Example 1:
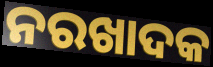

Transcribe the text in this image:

ନରଖାଦକ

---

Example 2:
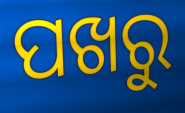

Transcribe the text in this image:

ପଖରୁ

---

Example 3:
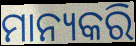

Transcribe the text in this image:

ମାନ୍ୟକରି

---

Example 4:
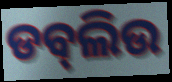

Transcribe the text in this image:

ଡବ୍‍ଲିଉ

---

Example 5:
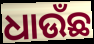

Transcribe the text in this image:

ଧାଉଁଛ